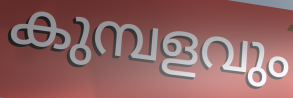
കുമ്പളവും